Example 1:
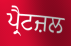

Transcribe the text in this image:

ਪ੍ਰੈਟਜ਼ਲ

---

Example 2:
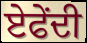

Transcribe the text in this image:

ਏਫੇਂਦੀ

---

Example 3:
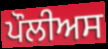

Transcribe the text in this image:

ਪੌਲੀਅਸ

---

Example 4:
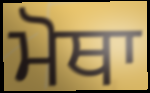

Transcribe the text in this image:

ਮੋਥਾ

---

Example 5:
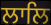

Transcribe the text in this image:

ਲਾਲਿ